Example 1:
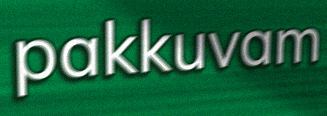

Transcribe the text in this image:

pakkuvam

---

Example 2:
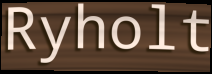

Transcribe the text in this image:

Ryholt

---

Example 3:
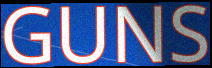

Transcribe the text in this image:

GUNS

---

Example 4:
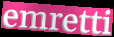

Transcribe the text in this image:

emretti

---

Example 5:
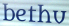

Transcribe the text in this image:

bethu